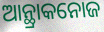
ଆନ୍ଥ୍ରାକନୋଜ